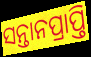
ସନ୍ତାନପ୍ରାପ୍ତି